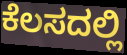
ಕೆಲಸದಲ್ಲಿ